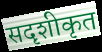
सदृशीकृत